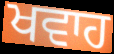
ਖਵਾਹ